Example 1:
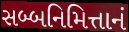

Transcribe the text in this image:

સબ્બનિમિત્તાનં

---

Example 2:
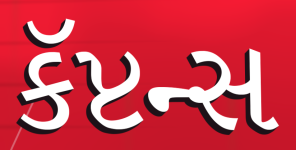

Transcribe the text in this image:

કૅપ્ટન્સ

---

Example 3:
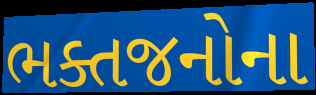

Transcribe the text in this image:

ભક્તજનોના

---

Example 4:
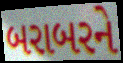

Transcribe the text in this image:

બરાબરને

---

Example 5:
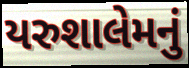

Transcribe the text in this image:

યરુશાલેમનું